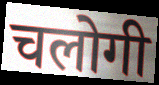
चलोगी